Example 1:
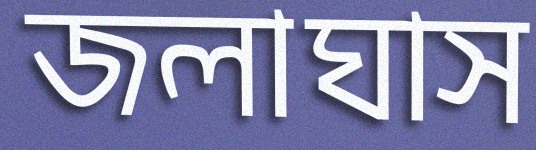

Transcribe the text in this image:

জলাঘাস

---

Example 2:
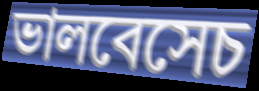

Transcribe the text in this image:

ভালবেসেচ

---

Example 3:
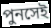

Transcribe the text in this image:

পুনসেই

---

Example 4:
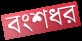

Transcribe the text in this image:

বংশধর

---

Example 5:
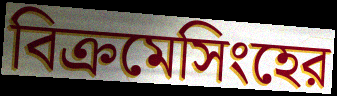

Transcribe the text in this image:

বিক্রমেসিংহের